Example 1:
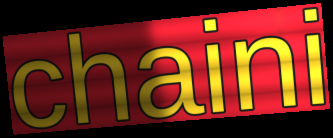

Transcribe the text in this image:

chaini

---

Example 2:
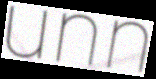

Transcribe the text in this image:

unn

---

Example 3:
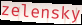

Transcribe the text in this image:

zelensky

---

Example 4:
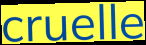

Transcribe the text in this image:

cruelle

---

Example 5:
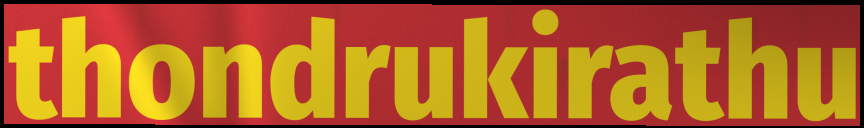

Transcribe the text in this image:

thondrukirathu